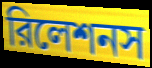
রিলেশনস